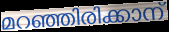
മറഞ്ഞിരിക്കാന്